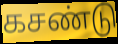
கசண்டு